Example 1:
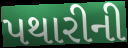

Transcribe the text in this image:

પથારીની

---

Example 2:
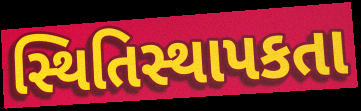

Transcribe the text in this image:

સ્થિતિસ્થાપકતા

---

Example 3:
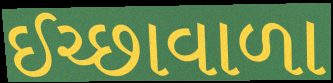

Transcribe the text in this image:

ઈચ્છાવાળા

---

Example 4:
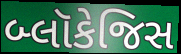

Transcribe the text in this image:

બ્લૉકેજિસ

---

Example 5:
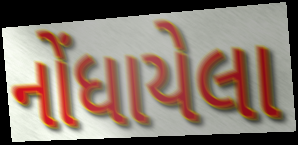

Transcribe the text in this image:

નોંધાયેલા